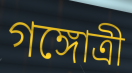
গঙ্গোত্রী